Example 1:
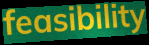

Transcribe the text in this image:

feasibility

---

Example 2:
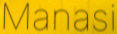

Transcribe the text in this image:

Manasi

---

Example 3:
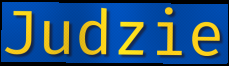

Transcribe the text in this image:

Judzie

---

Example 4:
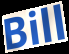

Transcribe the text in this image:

Bill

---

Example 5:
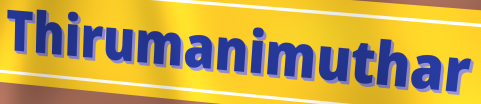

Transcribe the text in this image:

Thirumanimuthar